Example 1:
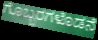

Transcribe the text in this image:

ಗೊಬ್ಬರಗಳೊಡನೆ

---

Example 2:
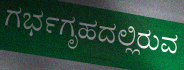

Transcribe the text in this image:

ಗರ್ಭಗೃಹದಲ್ಲಿರುವ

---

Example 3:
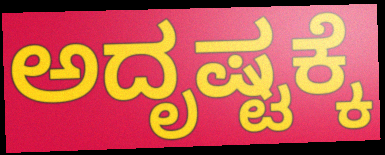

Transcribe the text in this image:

ಅದೃಷ್ಟಕ್ಕೆ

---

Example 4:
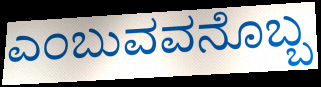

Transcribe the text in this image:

ಎಂಬುವವನೊಬ್ಬ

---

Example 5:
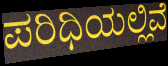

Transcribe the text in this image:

ಪರಿಧಿಯಲ್ಲಿವೆ